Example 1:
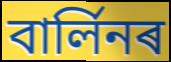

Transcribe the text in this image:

বাৰ্লিনৰ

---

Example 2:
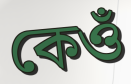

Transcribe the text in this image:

কেওঁ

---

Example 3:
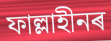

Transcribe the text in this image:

ফাল্লাহীনৰ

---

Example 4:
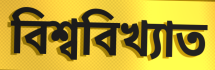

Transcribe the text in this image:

বিশ্ববিখ্যাত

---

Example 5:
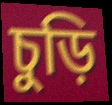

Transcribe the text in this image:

চুড়ি